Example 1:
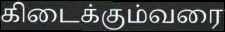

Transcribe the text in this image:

கிடைக்கும்வரை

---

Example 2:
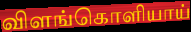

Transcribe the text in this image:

விளங்கொளியாய்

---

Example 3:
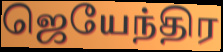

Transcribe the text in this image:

ஜெயேந்திர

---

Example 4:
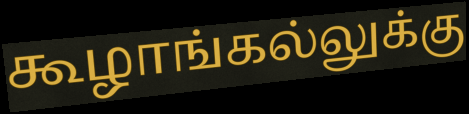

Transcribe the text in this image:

கூழாங்கல்லுக்கு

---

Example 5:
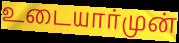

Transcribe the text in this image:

உடையார்முன்